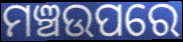
ମଞ୍ଚଉପରେ